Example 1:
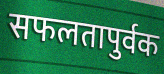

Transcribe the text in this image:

सफलतापुर्वक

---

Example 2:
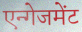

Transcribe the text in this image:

एन्गेजमेंट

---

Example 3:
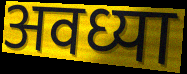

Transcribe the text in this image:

अवध्या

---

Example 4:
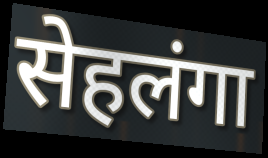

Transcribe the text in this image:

सेहलंगा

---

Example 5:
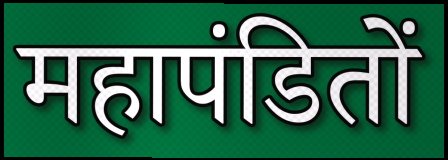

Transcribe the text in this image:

महापंडितों